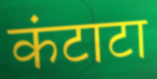
कंटाटा